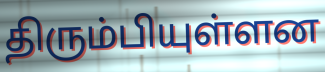
திரும்பியுள்ளன